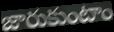
జారుకుంటాం